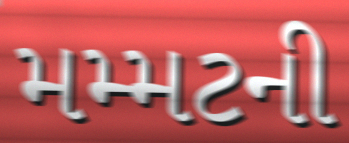
મમ્મટની